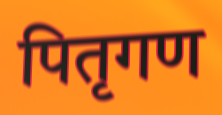
पितृगण